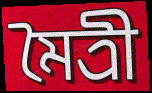
মৈত্রী